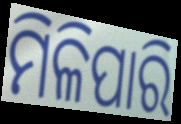
ମିଳିପାରି